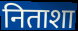
निताशा